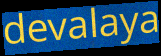
devalaya